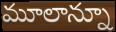
మూలాన్నూ